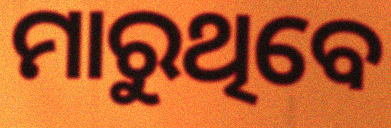
ମାରୁଥିବେ